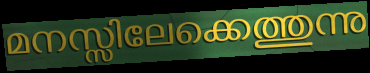
മനസ്സിലേക്കെത്തുന്നു